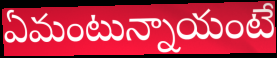
ఏమంటున్నాయంటే